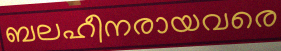
ബലഹീനരായവരെ